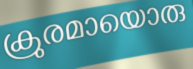
ക്രുരമായൊരു